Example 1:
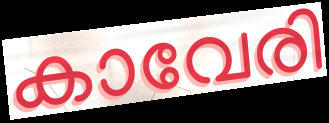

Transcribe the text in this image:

കാവേരി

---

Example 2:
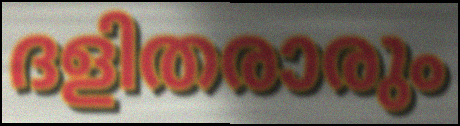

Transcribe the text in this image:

ദളിതരാരും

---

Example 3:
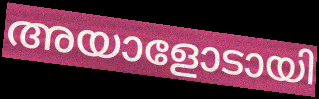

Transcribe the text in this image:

അയാളോടായി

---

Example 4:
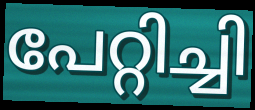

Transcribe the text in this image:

പേറ്റിച്ചി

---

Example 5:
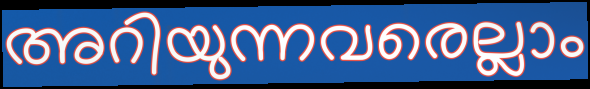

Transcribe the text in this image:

അറിയുന്നവരെല്ലാം